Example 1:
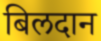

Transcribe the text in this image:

बिलदान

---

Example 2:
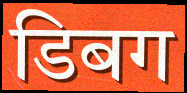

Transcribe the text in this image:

डिबग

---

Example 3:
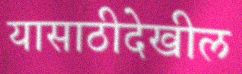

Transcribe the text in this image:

यासाठीदेखील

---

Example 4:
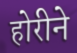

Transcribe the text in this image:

होरीने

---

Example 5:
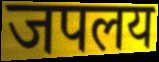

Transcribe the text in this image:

जपलय